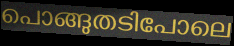
പൊങ്ങുതടിപോലെ